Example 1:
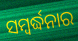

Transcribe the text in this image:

ସମ୍ବର୍ଦ୍ଧନାର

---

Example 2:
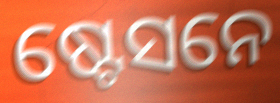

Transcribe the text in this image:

ଷ୍ଟେସନେ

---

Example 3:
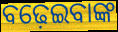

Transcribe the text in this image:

ବଢ଼େଇବାଙ୍କ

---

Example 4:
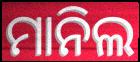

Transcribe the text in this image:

ମାନିଲ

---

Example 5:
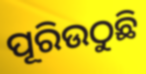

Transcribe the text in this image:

ପୂରିଉଠୁଛି